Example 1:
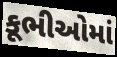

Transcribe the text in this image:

કૂભીઓમાં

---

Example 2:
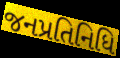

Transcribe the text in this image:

જનપ્રતિનિધિ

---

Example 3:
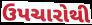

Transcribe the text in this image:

ઉપચારોથી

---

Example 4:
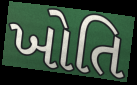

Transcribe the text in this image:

ખોતિ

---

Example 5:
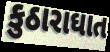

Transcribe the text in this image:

કુઠારાઘાત